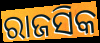
ରାଜସିକ